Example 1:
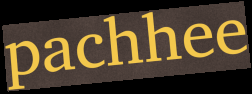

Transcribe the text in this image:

pachhee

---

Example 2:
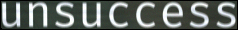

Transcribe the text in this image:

unsuccess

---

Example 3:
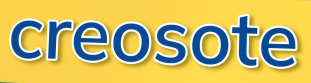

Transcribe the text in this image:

creosote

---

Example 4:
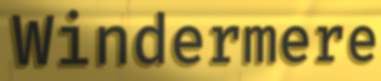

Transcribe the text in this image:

Windermere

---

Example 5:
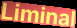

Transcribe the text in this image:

Liminal